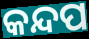
କନ୍ଦପ